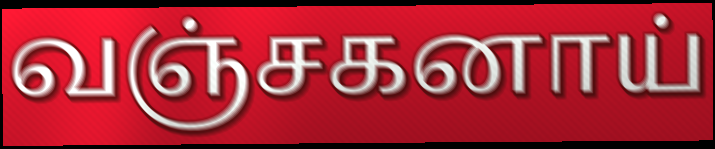
வஞ்சகனாய்